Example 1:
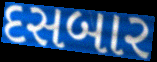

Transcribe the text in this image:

દસબાર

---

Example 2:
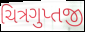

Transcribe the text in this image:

ચિત્રગુપ્તજી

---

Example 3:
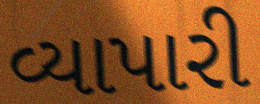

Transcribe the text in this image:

વ્યાપારી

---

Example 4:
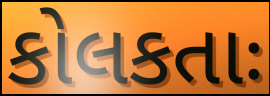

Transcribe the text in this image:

કોલકતાઃ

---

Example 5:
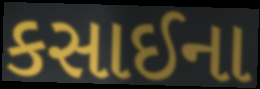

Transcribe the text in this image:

કસાઈના